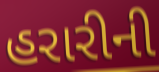
હરારીની